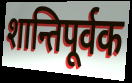
शान्तिपूर्वक